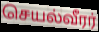
செயல்வீரர்